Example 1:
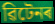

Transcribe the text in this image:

ৱিটেনৰ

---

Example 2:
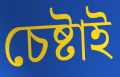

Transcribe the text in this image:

চেষ্টাই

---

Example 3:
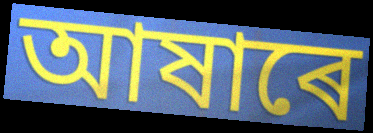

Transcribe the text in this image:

আষাৰে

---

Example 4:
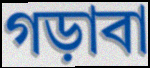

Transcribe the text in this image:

গড়াবা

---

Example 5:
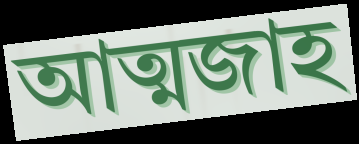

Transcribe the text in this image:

আত্মজাহ